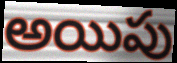
అయిపు